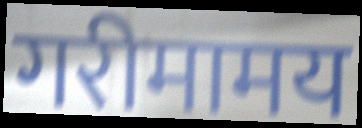
गरीमामय